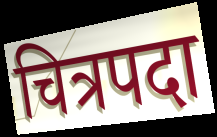
चित्रपदा